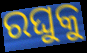
ରଘୁକୁ